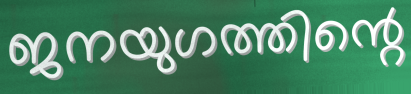
ജനയുഗത്തിന്റെ